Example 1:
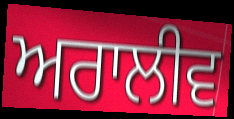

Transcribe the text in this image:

ਅਰਾਲੀਵ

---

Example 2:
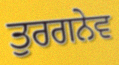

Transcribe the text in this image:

ਤੁਰਗਨੇਵ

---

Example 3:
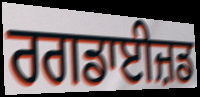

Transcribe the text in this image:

ਰਗਡਾਈਜ਼ਡ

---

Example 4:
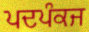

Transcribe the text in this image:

ਪਦਪੰਕਜ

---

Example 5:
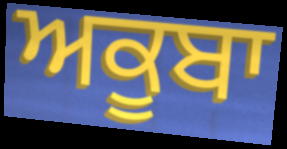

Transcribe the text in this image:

ਅਕੂਬਾ